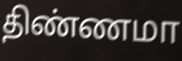
திண்ணமா